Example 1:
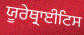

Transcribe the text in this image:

ਯੂਰੇਥ੍ਰਾਈਟਿਸ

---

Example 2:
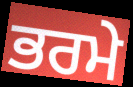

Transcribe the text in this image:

ਭਰਮੇ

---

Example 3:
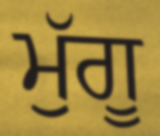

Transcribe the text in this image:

ਮੁੱਗੂ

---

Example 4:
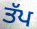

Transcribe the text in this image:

ਤੱਪ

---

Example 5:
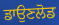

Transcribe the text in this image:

ਡਾਉਣਲੋਡ